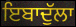
ਇਬਾਦੁੱਲਾ